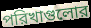
পরিখাগুলোর